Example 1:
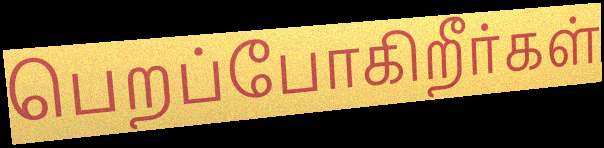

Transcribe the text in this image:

பெறப்போகிறீர்கள்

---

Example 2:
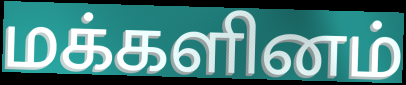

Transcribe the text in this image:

மக்களினம்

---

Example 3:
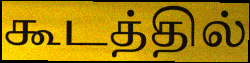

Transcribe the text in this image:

கூடத்தில்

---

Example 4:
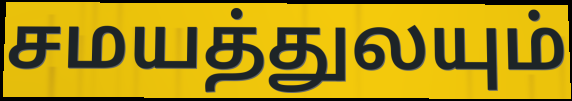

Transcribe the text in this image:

சமயத்துலயும்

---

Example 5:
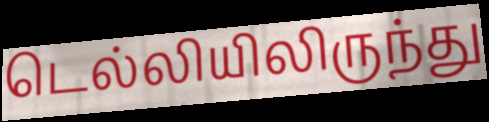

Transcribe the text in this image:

டெல்லியிலிருந்து